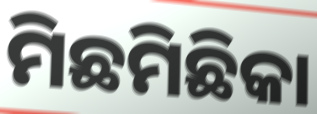
ମିଛମିଛିକା